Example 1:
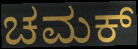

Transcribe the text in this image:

ಚಮಕ್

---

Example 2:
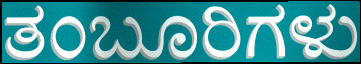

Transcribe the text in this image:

ತಂಬೂರಿಗಳು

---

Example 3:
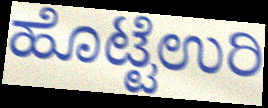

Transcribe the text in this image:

ಹೊಟ್ಟೆಉರಿ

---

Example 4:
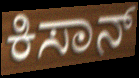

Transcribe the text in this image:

ಕಿಸಾನ್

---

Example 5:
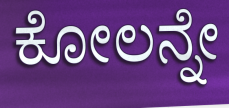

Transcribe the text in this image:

ಕೋಲನ್ನೇ